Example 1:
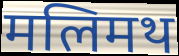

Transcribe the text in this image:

मलिमथ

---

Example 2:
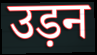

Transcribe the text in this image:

उड़न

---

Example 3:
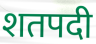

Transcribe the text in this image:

शतपदी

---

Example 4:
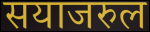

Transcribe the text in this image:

सयाजरुल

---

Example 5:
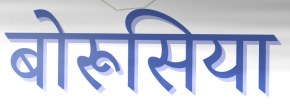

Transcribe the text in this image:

बोरूसिया